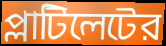
প্লাটিলেটের